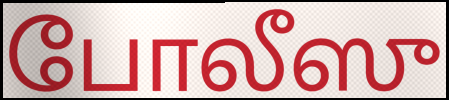
போலீஸு